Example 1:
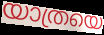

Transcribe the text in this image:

യാത്രയെ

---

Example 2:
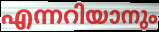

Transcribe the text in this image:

എന്നറിയാനും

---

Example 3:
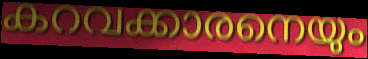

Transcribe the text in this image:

കറവക്കാരനെയും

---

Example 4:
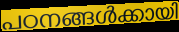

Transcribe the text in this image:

പഠനങ്ങൾക്കായി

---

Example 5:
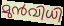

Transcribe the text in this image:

മുൻവിധി